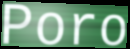
Poro